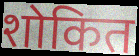
शोकित